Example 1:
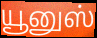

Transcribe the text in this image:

யூனுஸ்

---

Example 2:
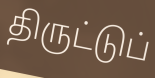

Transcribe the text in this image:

திருட்டுப்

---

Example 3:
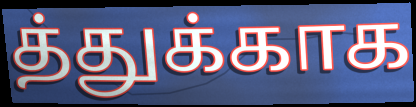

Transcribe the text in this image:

த்துக்காக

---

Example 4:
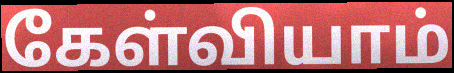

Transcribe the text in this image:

கேள்வியாம்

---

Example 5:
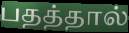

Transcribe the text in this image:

பதத்தால்